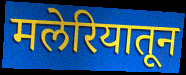
मलेरियातून